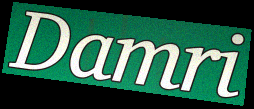
Damri